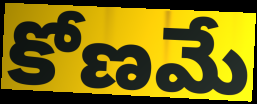
కోణమే